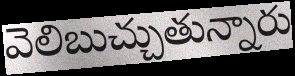
వెలిబుచ్చుతున్నారు